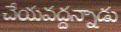
చేయవద్దన్నాడు